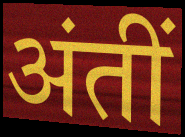
अंतीं